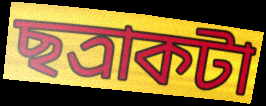
ছত্রাকটা